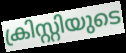
ക്രിസ്റ്റിയുടെ